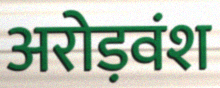
अरोड़वंश